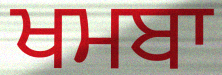
ਖਮਬਾ